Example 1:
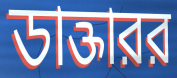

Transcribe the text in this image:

ডাক্তারর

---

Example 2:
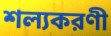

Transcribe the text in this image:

শল্যকরণী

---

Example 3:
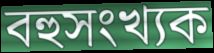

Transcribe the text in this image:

বহুসংখ্যক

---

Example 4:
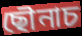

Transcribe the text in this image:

ছৌনাচ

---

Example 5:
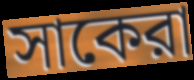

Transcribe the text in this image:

সাকেরা